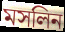
মসলিন